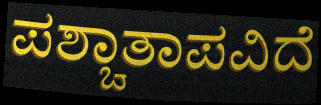
ಪಶ್ಚಾತಾಪವಿದೆ